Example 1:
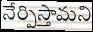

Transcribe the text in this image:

నేర్పిస్తామని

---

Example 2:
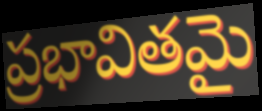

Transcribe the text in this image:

ప్రభావితమై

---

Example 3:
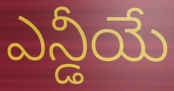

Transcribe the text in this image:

ఎన్డీయే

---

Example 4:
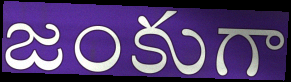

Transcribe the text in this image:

జంకుగా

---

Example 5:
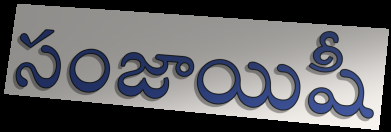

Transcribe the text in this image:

సంజాయిషీ